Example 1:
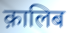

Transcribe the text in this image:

क़ालिब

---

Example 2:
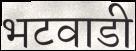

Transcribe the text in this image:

भटवाडी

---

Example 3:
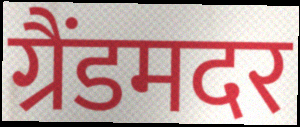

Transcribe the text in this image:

ग्रैंडमदर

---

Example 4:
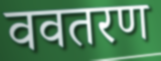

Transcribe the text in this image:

ववतरण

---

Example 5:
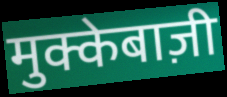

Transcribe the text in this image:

मुक्केबाज़ी